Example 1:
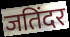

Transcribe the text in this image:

जतिंदर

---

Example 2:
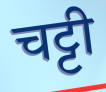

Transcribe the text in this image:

चट्टी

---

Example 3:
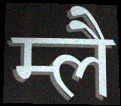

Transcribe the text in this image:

म्लै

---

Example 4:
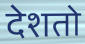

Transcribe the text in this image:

देशतो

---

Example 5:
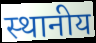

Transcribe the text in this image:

स्थानीय